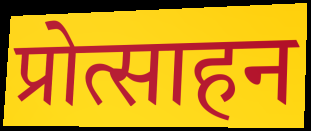
प्रोत्साहन